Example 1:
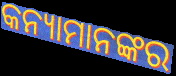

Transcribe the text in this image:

କନ୍ୟାମାନଙ୍କର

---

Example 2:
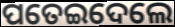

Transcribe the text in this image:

ପତେଇଦେଲେ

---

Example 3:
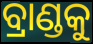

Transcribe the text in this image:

ବ୍ରାଣ୍ଡକୁ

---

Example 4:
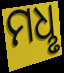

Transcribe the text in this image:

ମଧୢ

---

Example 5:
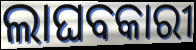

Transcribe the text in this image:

ଲାଘବକାରୀ